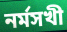
নর্মসখী